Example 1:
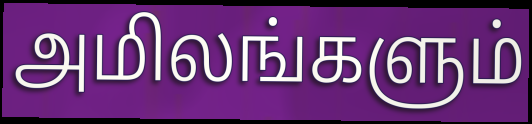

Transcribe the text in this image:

அமிலங்களும்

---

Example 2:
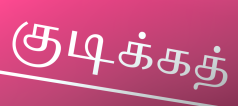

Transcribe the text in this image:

குடிக்கத்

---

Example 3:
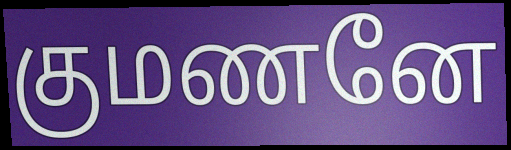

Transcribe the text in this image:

குமணனே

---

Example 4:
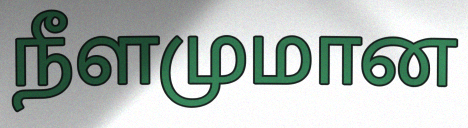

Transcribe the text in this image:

நீளமுமான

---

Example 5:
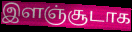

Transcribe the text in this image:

இளஞ்சூடாக